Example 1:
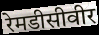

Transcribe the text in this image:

रेमडीसीवीर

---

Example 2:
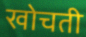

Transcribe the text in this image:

खोचती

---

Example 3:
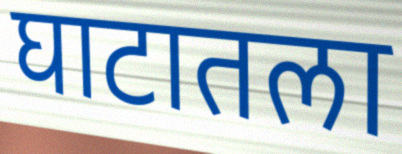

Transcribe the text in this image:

घाटातला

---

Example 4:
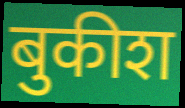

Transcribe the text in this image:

बुकीश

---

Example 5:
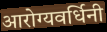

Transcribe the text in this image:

आरोग्यवर्धिनी